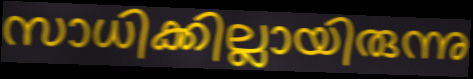
സാധിക്കില്ലായിരുന്നു